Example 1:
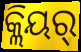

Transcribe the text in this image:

କ୍ଲିୟର୍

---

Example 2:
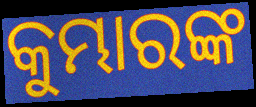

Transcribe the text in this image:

କୁମ୍ଭାରଙ୍କ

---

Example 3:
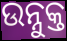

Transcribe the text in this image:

ଉନ୍ନୁକ୍ତ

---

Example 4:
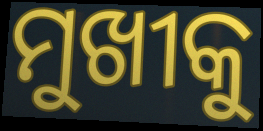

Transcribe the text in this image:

ମୁଖୀକୁ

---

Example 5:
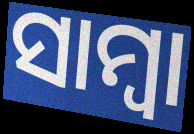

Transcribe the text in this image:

ସାମ୍ବା